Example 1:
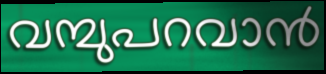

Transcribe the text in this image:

വമ്പുപറവാൻ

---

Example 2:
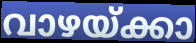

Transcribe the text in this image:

വാഴയ്ക്കാ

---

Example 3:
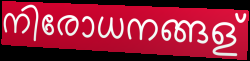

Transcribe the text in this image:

നിരോധനങ്ങള്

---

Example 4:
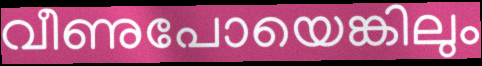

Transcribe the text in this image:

വീണുപോയെങ്കിലും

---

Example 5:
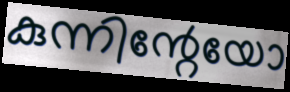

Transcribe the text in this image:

കുന്നിന്റേയോ